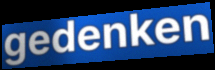
gedenken